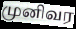
முனிவர